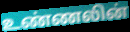
உண்ணலின்